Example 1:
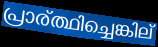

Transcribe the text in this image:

പ്രാര്ത്ഥിച്ചെങ്കില്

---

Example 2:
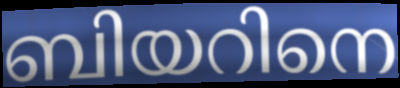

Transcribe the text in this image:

ബിയറിനെ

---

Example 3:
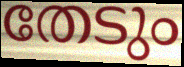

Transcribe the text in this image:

തേടും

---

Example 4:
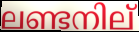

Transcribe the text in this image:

ലണ്ടനില്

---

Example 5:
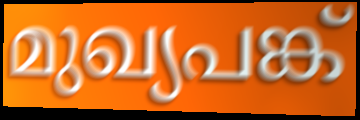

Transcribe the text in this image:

മുഖ്യപങ്ക്